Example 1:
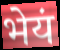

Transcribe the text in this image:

भेयं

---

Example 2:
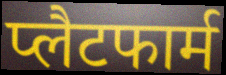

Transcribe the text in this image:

प्लैटफार्म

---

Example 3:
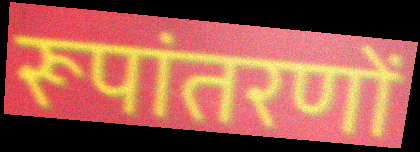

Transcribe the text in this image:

रूपांतरणों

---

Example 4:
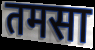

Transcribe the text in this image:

तमसा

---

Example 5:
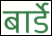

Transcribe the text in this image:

बार्डे